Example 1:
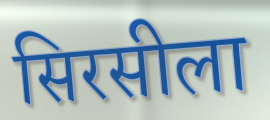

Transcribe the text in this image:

सिरसीला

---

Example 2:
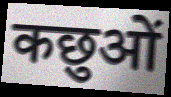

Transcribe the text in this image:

कछुओं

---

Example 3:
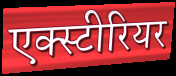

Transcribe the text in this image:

एक्स्टीरियर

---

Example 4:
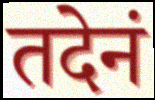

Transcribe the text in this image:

तदेनं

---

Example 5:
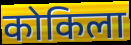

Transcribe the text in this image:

कोकिला